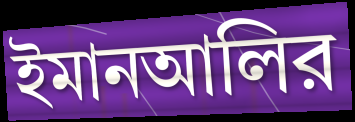
ইমানআলির